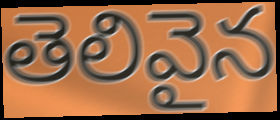
తెలివైన